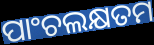
ପାଂଚଲକ୍ଷତମ